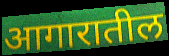
आगारातील